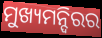
ମୁଖ୍ୟମନ୍ଦିରର